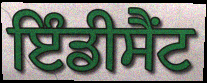
ਇੰਡੀਸੈਂਟ